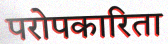
परोपकारिता